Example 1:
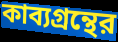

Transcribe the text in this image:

কাব্যগ্রন্থের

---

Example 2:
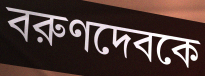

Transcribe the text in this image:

বরুণদেবকে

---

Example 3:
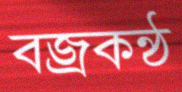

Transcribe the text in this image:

বজ্রকন্ঠ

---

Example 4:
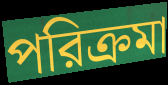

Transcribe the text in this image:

পরিক্রমা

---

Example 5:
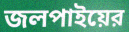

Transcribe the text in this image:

জলপাইয়ের